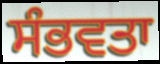
ਸੰਭਵਤਾ